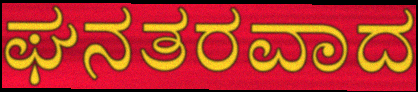
ಘನತರವಾದ